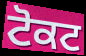
ਟੋਕਟ